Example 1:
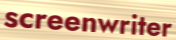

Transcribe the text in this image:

screenwriter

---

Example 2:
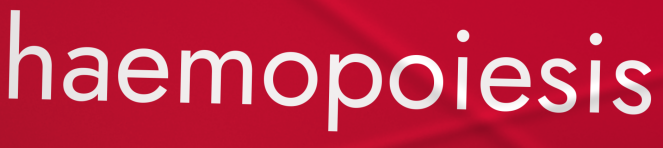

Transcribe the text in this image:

haemopoiesis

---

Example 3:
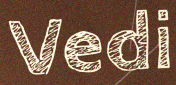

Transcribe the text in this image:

Vedi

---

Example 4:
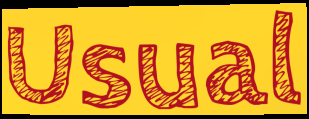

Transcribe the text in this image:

Usual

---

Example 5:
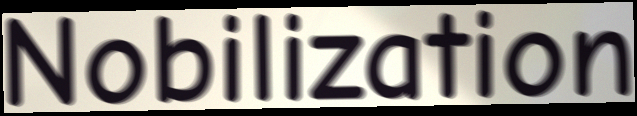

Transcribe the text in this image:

Nobilization